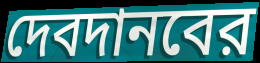
দেবদানবের